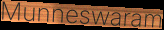
Munneswaram